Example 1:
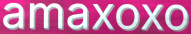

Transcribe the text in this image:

amaxoxo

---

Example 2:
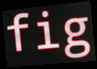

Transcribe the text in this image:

fig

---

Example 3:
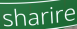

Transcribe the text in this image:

sharire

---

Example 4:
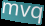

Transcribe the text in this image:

mvq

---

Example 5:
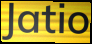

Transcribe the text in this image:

Jatio